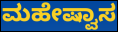
ಮಹೇಷ್ವಾಸ